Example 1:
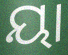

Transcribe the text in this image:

ୟା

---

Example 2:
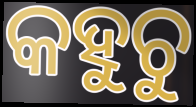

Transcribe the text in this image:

କହୁଚୁ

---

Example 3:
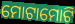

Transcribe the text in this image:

ମୋଟାମୋଟି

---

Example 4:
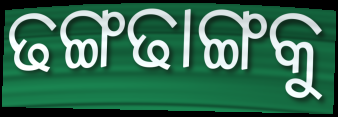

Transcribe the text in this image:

ଢଙ୍ଗଢାଙ୍ଗକୁ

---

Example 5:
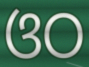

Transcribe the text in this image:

ଓଠ